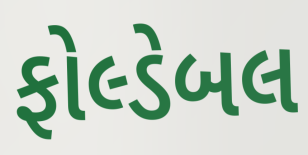
ફોલ્ડેબલ